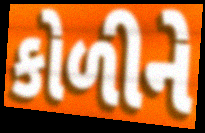
કોળીને